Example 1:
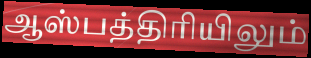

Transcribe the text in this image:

ஆஸ்பத்திரியிலும்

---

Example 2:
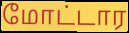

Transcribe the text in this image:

மோட்டார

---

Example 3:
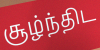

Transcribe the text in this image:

சூழ்ந்திட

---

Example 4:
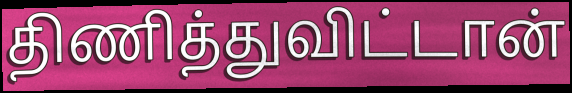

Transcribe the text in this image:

திணித்துவிட்டான்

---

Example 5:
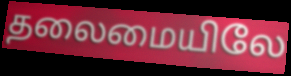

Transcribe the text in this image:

தலைமையிலே